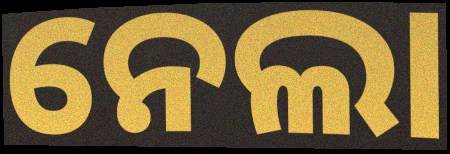
ନେଲା